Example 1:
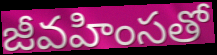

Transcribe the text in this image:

జీవహింసతో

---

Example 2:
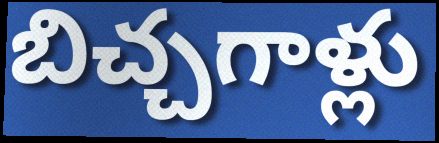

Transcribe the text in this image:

బిచ్చగాళ్లు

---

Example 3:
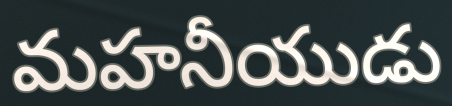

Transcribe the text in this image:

మహనీయుడు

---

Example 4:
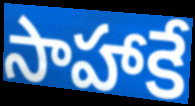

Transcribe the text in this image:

సాహాకే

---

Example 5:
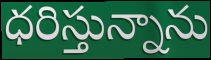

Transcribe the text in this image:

ధరిస్తున్నాను